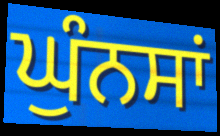
ਘੁੰਨਸਾਂ